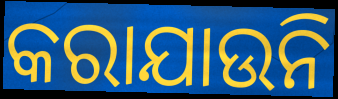
କରାଯାଉନି